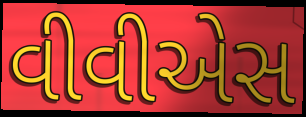
વીવીએસ